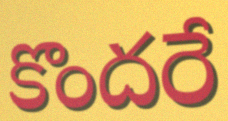
కొందరే